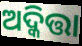
ଅଦ୍କିତ୍ତା